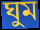
ঘুম